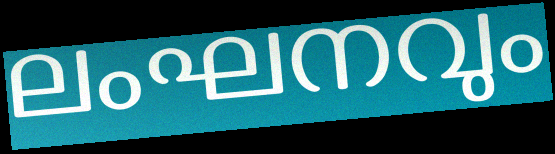
ലംഘനവും